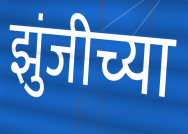
झुंजीच्या